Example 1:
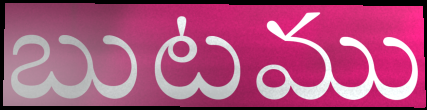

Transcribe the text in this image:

బుటము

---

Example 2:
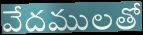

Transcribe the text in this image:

వేదములతో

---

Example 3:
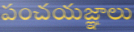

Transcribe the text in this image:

పంచయజ్ఞాలు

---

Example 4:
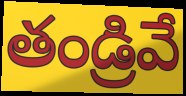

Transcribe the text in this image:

తండ్రివే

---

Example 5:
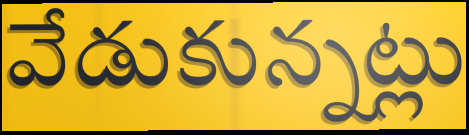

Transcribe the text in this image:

వేడుకున్నట్లు